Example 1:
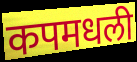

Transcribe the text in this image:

कपमधली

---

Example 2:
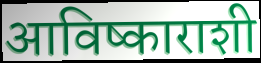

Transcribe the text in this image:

आविष्काराशी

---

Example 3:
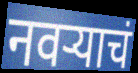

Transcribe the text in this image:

नवर्‍याचं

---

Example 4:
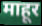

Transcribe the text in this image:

माहूर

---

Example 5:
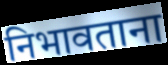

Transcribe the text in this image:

निभावताना